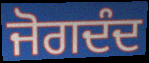
ਜੋਗਦੰਦ